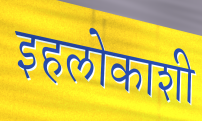
इहलोकाशी